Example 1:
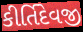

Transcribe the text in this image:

કીર્તિદેવજી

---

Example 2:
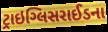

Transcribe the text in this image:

ટ્રાઇગ્લિસરાઈડના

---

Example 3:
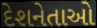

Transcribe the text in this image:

દેશનેતાઓ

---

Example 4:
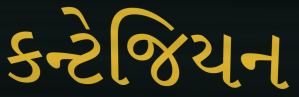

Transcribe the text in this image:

કન્ટેજિયન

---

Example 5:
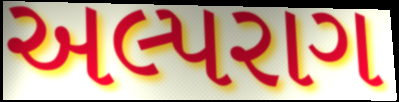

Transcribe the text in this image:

અલ્પરાગ